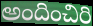
అందించిరి